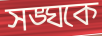
সঙ্ঘকে